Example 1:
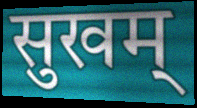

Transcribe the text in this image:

सुखम्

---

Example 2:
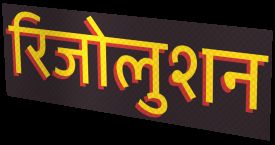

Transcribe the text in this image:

रिजोलुशन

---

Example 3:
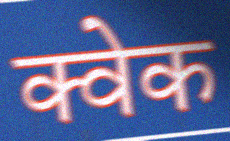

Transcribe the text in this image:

क्वेक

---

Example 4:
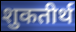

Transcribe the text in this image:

शुकतीर्थ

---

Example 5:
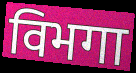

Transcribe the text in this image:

विभगा